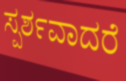
ಸ್ಪರ್ಶವಾದರೆ